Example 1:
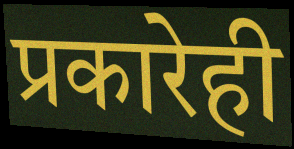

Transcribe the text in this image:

प्रकारेही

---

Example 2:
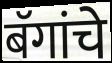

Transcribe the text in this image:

बॅगांचे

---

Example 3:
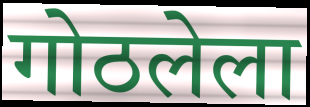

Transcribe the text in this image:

गोठलेला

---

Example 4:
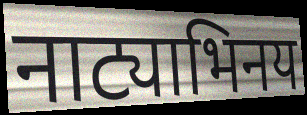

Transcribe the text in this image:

नाट्याभिनय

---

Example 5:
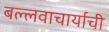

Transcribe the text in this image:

बल्लवाचार्याची